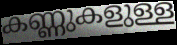
കണ്ണുകളുള്ള